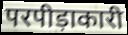
परपीड़ाकारी